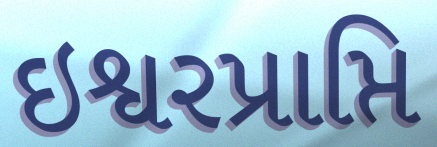
ઇશ્વરપ્રાપ્તિ